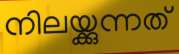
നിലയ്ക്കുന്നത്